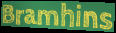
Bramhins